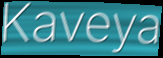
Kaveya